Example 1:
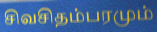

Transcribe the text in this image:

சிவசிதம்பரமும்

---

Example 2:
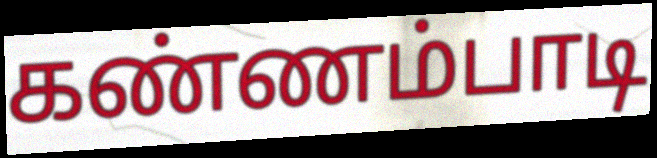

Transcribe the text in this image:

கண்ணம்பாடி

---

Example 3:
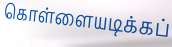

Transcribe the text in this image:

கொள்ளையடிக்கப்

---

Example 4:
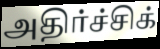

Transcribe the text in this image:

அதிர்ச்சிக்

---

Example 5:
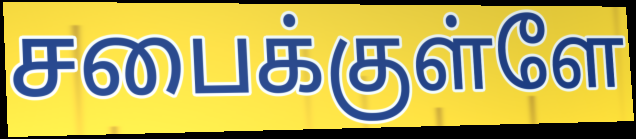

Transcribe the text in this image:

சபைக்குள்ளே